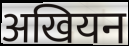
अखियन